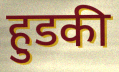
हुडकी